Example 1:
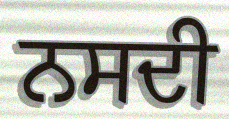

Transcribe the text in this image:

ਨਸਦੀ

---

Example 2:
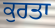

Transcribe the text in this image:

ਕੁਰਤਾ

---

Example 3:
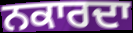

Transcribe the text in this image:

ਨਕਾਰਦਾ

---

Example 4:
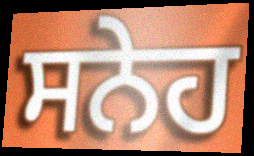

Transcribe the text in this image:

ਸਨੇਹ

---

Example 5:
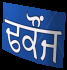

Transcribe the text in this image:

ਢਕੌਂਜ